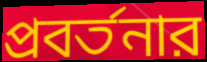
প্রবর্তনার